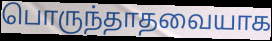
பொருந்தாதவையாக